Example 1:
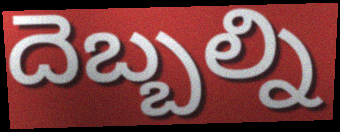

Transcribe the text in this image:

దెబ్బల్ని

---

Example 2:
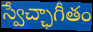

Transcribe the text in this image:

స్వేచ్ఛాగీతం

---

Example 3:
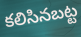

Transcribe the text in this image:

కలిసినబట్ట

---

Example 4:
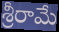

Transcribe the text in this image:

శ్రీరామే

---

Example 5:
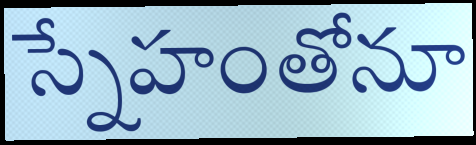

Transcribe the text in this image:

స్నేహంతోనూ